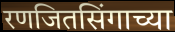
रणजितसिंगाच्या